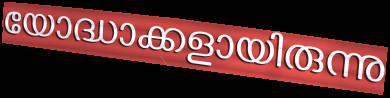
യോദ്ധാക്കളായിരുന്നു